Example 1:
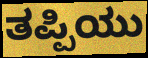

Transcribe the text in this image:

ತಪ್ಪಿಯು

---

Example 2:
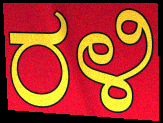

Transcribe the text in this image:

ರಳಿ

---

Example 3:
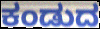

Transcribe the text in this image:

ಕಂಡುದ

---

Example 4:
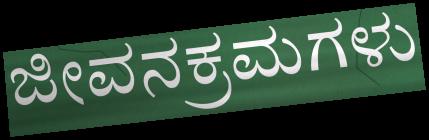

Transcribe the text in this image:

ಜೀವನಕ್ರಮಗಳು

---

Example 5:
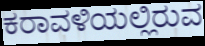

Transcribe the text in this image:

ಕರಾವಳಿಯಲ್ಲಿರುವ